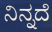
ನಿನ್ನದೆ